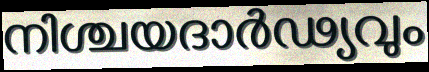
നിശ്ചയദാർഢ്യവും